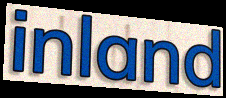
inland